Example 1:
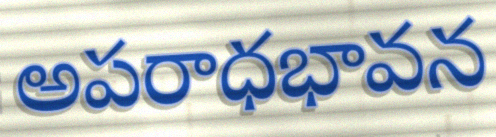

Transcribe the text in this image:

అపరాధభావన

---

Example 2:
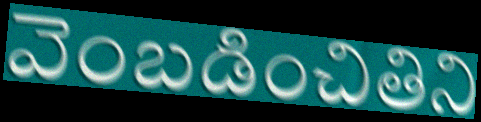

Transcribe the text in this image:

వెంబడించితిని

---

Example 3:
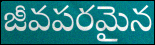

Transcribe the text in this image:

జీవపరమైన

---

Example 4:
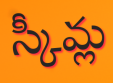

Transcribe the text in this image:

స్కీమ్ల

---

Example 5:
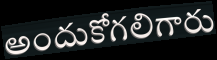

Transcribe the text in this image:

అందుకోగలిగారు